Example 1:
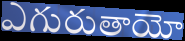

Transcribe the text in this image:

ఎగురుతాయో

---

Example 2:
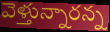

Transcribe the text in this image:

వెళ్తున్నారన్న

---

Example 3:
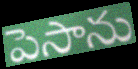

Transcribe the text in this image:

పెసాను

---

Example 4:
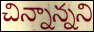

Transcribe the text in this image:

చిన్నాన్నని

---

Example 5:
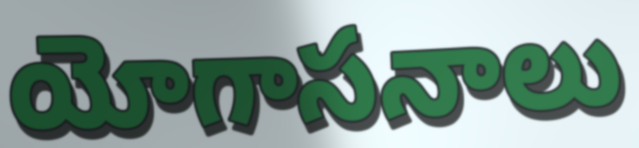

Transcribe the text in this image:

యోగాసనాలు